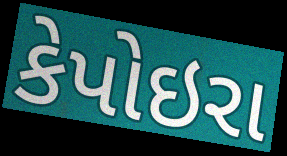
કેપોઇરા